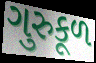
ગુરુકૂળ